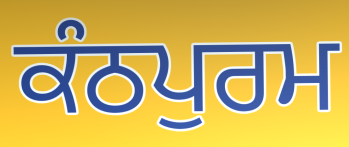
ਕੰਠਪੁਰਮ